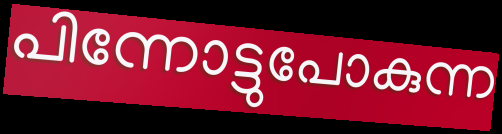
പിന്നോട്ടുപോകുന്ന